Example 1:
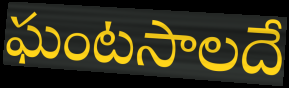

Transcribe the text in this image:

ఘంటసాలదే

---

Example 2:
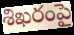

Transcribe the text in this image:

శిఖరంపై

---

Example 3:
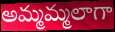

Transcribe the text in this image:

అమ్మమ్మలాగా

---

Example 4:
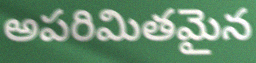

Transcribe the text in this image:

అపరిమితమైన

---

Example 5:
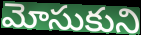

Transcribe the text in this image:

మోసుకుని